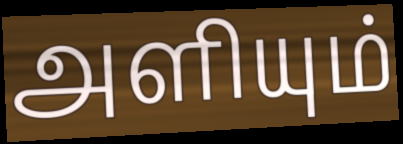
அளியும்